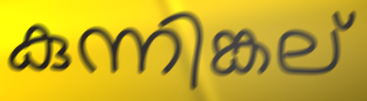
കുന്നിങ്കല്